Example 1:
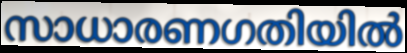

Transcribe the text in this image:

സാധാരണഗതിയിൽ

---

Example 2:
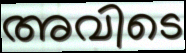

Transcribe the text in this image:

അവിടെ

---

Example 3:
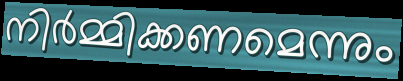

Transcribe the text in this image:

നിർമ്മിക്കണമെന്നും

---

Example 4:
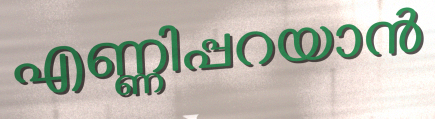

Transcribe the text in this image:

എണ്ണിപ്പറയാൻ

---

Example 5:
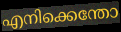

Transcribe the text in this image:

എനിക്കെന്തോ